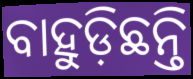
ବାହୁଡ଼ିଛନ୍ତି